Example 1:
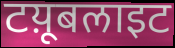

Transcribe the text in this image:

टय़ूबलाइट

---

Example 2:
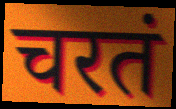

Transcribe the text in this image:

चरतं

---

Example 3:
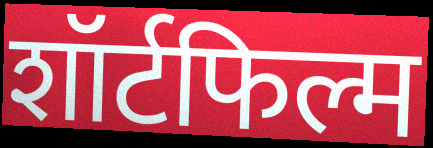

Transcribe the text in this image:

शॉर्टफिल्म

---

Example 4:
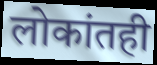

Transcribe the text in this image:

लोकांतही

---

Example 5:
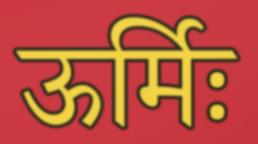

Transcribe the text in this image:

ऊर्मिः